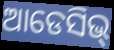
ଆଡେସିଭ୍